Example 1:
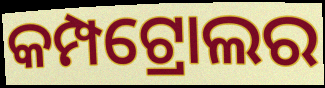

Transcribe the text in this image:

କମ୍ପଟ୍ରୋଲର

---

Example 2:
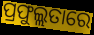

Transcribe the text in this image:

ପ୍ରଫୁଲ୍ଲତାରେ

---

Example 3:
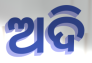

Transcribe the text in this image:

ଅଦି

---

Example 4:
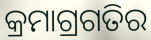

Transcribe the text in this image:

କ୍ରମାଗ୍ରଗତିର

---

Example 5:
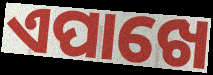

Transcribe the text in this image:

ଏପାଖେ